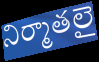
నిర్మాతలై